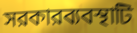
সরকারব্যবস্থাটি